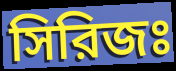
সিরিজঃ